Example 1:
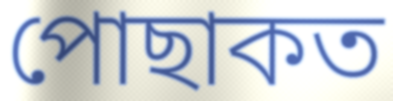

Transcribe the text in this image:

পোছাকত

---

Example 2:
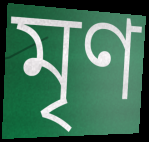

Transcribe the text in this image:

মৃণ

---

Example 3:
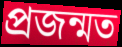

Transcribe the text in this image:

প্ৰজন্মত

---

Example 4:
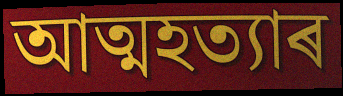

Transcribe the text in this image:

আত্মহত্যাৰ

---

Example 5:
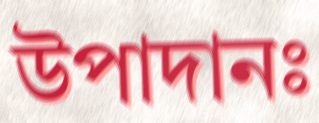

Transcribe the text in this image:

উপাদানঃ